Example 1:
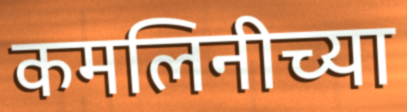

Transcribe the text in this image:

कमलिनीच्या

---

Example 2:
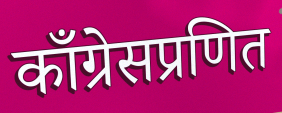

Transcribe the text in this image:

काँग्रेसप्रणित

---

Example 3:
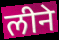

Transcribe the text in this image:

लीने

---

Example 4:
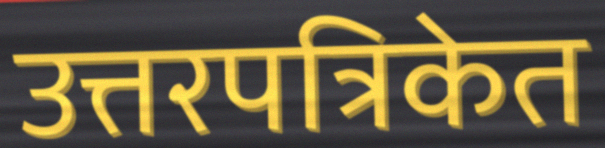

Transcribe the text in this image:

उत्तरपत्रिकेत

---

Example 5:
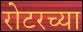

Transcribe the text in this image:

रोटरच्या